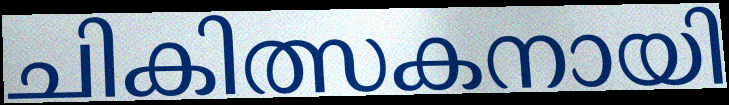
ചികിത്സകനായി